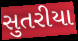
સુતરીયા